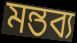
মন্তব্য